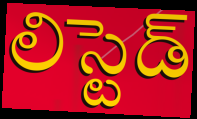
లిస్టెడ్